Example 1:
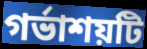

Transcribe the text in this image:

গর্ভাশয়টি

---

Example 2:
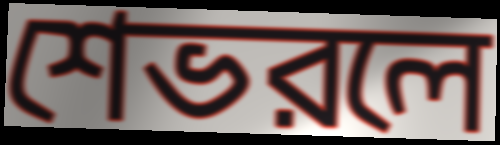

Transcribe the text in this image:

শেভরলে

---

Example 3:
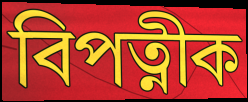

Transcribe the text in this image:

বিপত্নীক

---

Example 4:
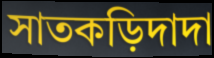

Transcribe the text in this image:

সাতকড়িদাদা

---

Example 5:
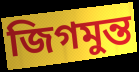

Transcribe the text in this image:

জিগমুন্ত